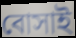
বোসাই